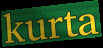
kurta